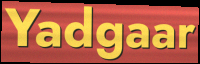
Yadgaar